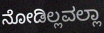
ನೋಡಿಲ್ಲವಲ್ಲಾ